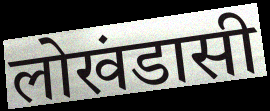
लोखंडासी